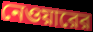
নেওয়ারের